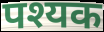
पश्यक